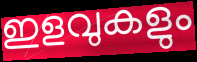
ഇളവുകളും